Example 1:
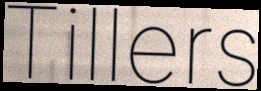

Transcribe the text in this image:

Tillers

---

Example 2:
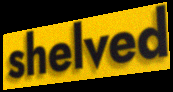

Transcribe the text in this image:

shelved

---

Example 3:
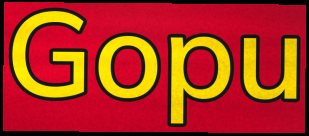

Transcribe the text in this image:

Gopu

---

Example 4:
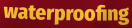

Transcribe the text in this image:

waterproofing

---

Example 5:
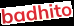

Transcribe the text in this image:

badhito